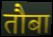
तौबा